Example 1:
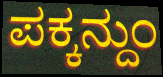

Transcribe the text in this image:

ಪಕ್ಕನ್ದುಂ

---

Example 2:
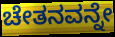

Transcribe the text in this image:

ಚೇತನವನ್ನೇ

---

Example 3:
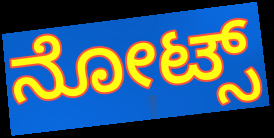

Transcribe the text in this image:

ನೋಟ್ಸ್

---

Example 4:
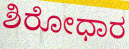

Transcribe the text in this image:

ಶಿರೋಧಾರ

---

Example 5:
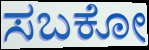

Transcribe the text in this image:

ಸಬಕೋ